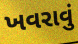
ખવરાવું